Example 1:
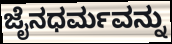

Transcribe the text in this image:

ಜೈನಧರ್ಮವನ್ನು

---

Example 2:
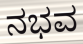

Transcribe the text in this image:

ನಭವ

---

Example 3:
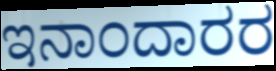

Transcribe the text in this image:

ಇನಾಂದಾರರ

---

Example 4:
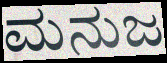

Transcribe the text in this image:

ಮನುಜ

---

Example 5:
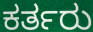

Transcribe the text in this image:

ಕರ್ತರು